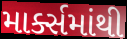
માર્ક્સમાંથી